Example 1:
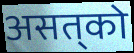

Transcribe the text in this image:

असत्‌को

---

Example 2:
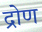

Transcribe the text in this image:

द्रोण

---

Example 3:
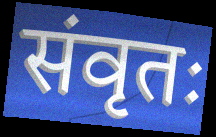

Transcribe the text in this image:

संवृतः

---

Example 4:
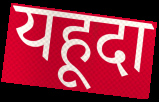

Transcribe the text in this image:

यहूदा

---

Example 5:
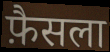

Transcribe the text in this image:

फ़ैसला